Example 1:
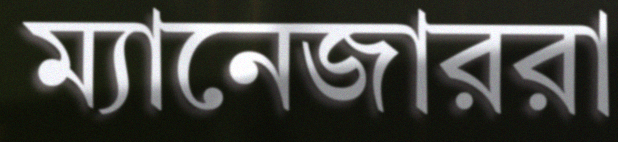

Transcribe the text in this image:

ম্যানেজাররা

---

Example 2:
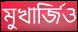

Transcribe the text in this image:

মুখার্জিও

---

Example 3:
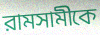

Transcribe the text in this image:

রামসামীকে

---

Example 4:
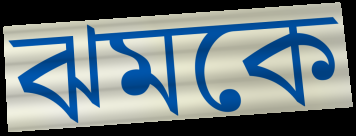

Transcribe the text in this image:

ঝমকে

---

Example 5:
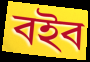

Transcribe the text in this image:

বইব